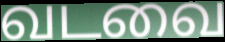
வடவை